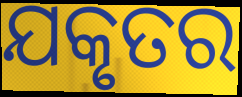
ଯକୃତର